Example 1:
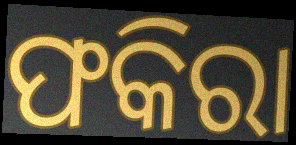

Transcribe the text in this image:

ଫକିରା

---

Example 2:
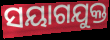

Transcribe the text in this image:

ସୟାଗଯୁକ୍ତ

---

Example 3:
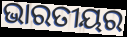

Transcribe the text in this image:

ଭାରତୀୟର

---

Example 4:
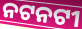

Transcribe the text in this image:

ନଟନଟୀ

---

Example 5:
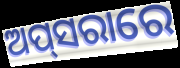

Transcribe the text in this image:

ଅପ୍‌ସରାରେ